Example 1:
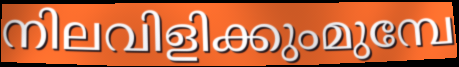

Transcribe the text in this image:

നിലവിളിക്കുംമുമ്പേ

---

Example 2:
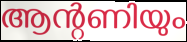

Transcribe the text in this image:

ആന്റണിയും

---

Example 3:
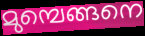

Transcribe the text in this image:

മുമ്പെങ്ങനെ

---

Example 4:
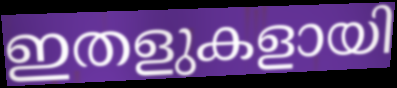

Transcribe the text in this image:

ഇതളുകളായി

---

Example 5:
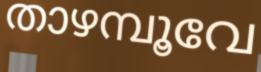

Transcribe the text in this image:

താഴമ്പൂവേ